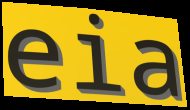
eia